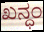
ಖನ್ಧಂ